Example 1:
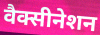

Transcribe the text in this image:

वैक्सीनेशन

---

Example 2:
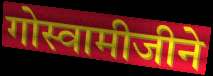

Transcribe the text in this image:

गोस्वामीजीने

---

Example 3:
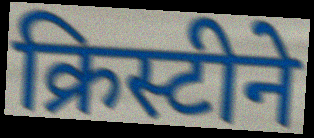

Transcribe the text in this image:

क्रिस्टीने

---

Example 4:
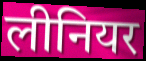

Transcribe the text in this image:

लीनियर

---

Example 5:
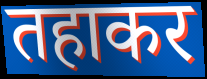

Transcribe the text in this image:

तहाकर